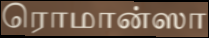
ரொமான்ஸா